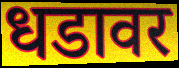
धडावर